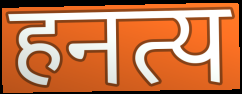
हनत्य